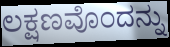
ಲಕ್ಷಣವೊಂದನ್ನು